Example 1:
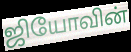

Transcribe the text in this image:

ஜியோவின்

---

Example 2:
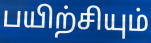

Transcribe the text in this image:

பயிற்சியும்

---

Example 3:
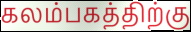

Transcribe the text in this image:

கலம்பகத்திற்கு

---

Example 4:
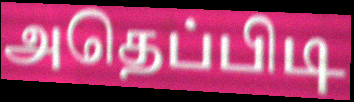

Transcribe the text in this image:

அதெப்பிடி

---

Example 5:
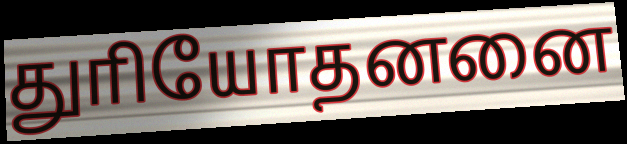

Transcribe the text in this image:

துரியோதனனை